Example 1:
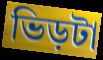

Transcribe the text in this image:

ভিড়টা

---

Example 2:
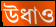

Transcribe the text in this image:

উধাও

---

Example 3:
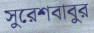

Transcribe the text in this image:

সুরেশবাবুর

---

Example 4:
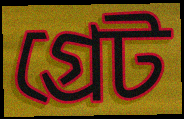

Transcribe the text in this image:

গ্রেট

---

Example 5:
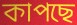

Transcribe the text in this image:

কাপছে